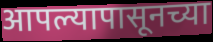
आपल्यापासूनच्या